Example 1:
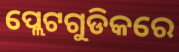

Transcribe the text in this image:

ପ୍ଲେଟଗୁଡିକରେ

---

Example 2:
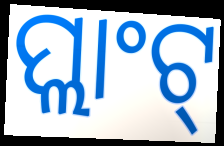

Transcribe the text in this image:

ପ୍ଲାଂଟ୍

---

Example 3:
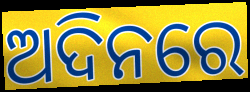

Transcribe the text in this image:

ଅଦିନରେ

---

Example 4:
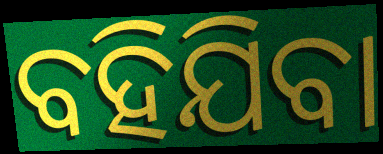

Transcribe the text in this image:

ବହିଯିବା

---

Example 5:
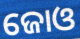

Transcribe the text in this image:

ଜୋଓ